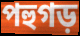
পহুগড়